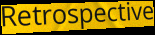
Retrospective